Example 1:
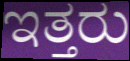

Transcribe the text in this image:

ಇತ್ತರು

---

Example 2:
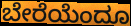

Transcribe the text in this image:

ಬೇರೆಯೆಂದೂ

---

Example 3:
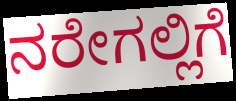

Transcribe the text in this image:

ನರೇಗಲ್ಲಿಗೆ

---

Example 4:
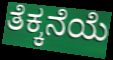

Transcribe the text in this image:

ತೆಕ್ಕನೆಯೆ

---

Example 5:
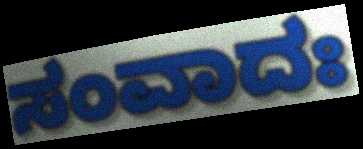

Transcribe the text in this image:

ಸಂವಾದಃ